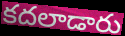
కదలాడారు